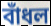
বাঁধল